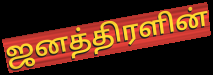
ஜனத்திரளின்